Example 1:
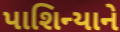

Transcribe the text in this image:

પાશિન્યાને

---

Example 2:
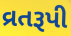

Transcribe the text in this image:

વ્રતરૂપી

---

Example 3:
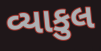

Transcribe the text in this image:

વ્યાકુલ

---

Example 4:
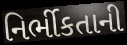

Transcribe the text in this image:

નિર્ભીકતાની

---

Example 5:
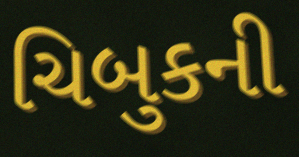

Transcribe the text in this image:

ચિબુકની